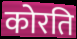
कोरति